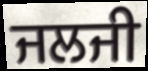
ਜਲਜੀ